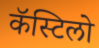
कॅस्टिलो